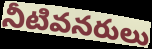
నీటివనరులు